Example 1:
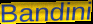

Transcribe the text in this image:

Bandini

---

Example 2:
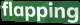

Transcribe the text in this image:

flapping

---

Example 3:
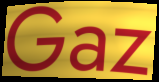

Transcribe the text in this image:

Gaz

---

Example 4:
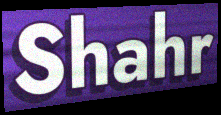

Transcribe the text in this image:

Shahr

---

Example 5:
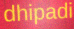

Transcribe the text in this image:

dhipadi